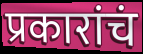
प्रकारांचं